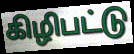
கிழிபட்டு